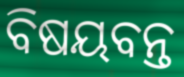
ବିଷୟବନ୍ତ